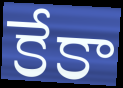
కేకా